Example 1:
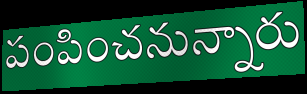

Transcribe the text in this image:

పంపించనున్నారు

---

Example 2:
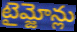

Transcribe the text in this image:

టైమ్జోన్లు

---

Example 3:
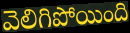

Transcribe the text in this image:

వెలిగిపోయింది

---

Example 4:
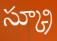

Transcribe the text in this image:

స్క్రూ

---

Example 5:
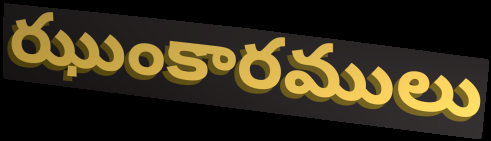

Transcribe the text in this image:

ఝుంకారములు